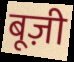
बूज़ी